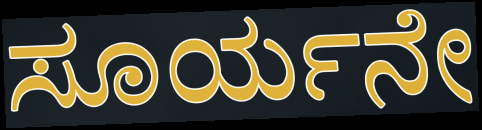
ಸೂರ್ಯನೇ